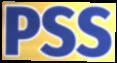
PSS